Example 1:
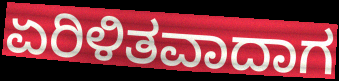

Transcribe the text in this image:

ಏರಿಳಿತವಾದಾಗ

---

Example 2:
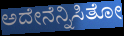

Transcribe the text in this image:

ಅದೇನೆನ್ನಿಸಿತೋ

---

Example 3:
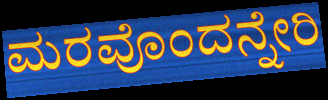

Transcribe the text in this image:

ಮರವೊಂದನ್ನೇರಿ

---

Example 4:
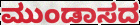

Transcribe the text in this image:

ಮುಂಡಾಸದ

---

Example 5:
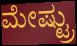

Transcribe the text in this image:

ಮೇಷ್ಟ್ರು